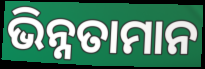
ଭିନ୍ନତାମାନ